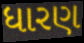
ધારણ